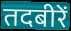
तदबीरें